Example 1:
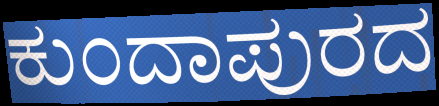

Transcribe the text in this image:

ಕುಂದಾಪುರದ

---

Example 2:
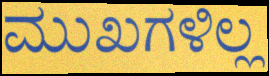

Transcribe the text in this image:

ಮುಖಗಳಿಲ್ಲ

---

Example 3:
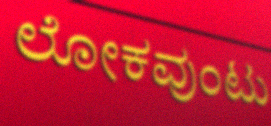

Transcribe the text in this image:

ಲೋಕವುಂಟು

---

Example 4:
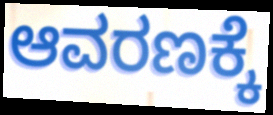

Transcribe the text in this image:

ಆವರಣಕ್ಕೆ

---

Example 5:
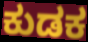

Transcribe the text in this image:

ಕುಡಕ